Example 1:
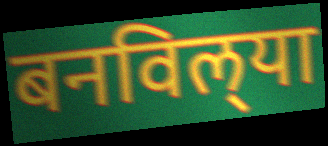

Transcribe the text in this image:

बनविल्या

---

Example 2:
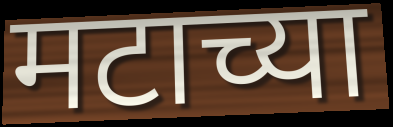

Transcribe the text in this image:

मटाच्या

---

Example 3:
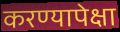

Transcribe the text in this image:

करण्यापेक्षा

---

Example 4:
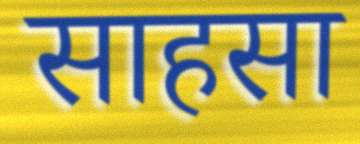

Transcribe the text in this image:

साहसा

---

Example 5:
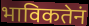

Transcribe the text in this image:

भाविकतेनं